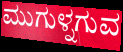
ಮುಗುಳ್ನಗುವ